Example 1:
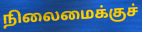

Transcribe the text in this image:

நிலைமைக்குச்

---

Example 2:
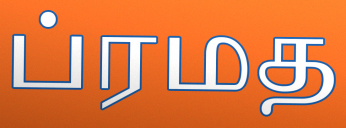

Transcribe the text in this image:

ப்ரமத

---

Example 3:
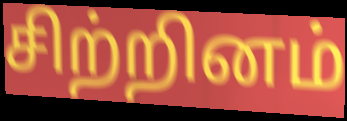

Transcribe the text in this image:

சிற்றினம்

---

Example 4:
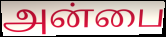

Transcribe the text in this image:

அன்பை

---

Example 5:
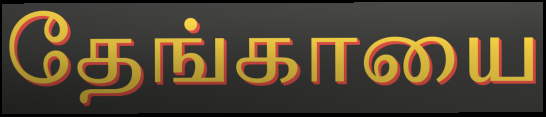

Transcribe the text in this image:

தேங்காயை